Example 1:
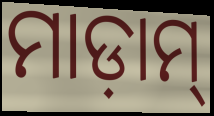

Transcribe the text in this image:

ମାଡ଼ାମ୍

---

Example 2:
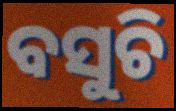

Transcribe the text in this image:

ବସୁଚି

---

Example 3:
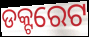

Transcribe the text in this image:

ଡକ୍ଟରେଟ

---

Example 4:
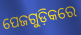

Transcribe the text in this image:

ପେଜଗୁଡ଼ିକରେ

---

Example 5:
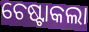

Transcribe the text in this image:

ଚେଷ୍ଟାକଲା